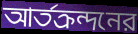
আর্তক্রন্দনের